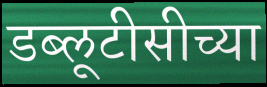
डब्लूटीसीच्या